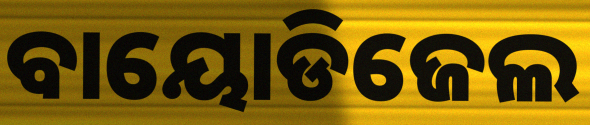
ବାୟୋଡିଜେଲ